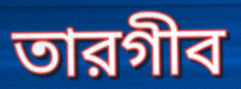
তারগীব